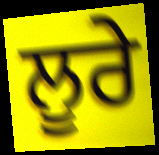
ਲੂਰੇ